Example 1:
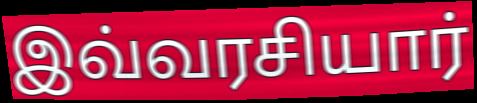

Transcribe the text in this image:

இவ்வரசியார்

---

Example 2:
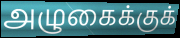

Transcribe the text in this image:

அழுகைக்குக்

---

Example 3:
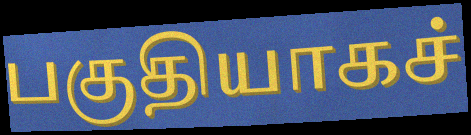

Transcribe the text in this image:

பகுதியாகச்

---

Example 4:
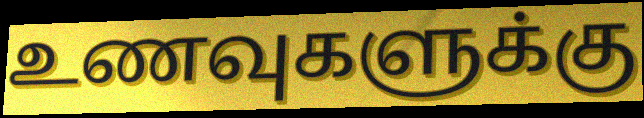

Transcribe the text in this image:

உணவுகளுக்கு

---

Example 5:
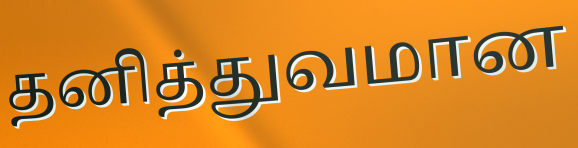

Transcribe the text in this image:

தனித்துவமான